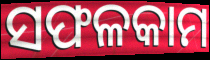
ସଫଳକାମ